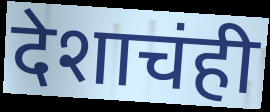
देशाचंही